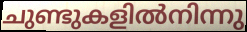
ചുണ്ടുകളിൽനിന്നു